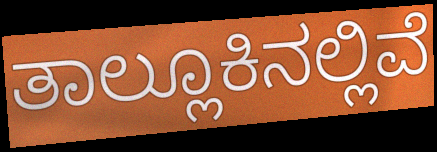
ತಾಲ್ಲೂಕಿನಲ್ಲಿವೆ